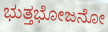
ಭುತ್ತಭೋಜನೋ